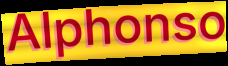
Alphonso